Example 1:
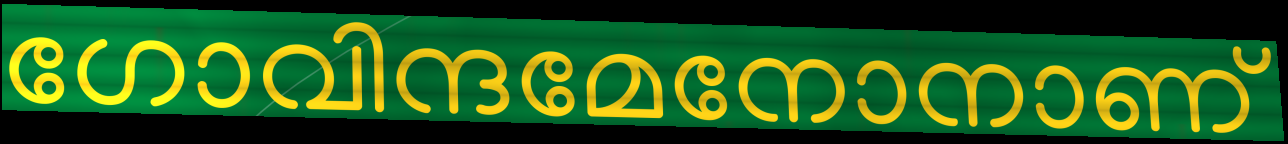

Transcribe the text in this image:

ഗോവിന്ദമേനോനാണ്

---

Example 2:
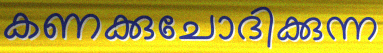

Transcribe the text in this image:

കണക്കുചോദിക്കുന്ന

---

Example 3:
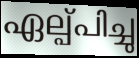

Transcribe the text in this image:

ഏല്പ്പിച്ചു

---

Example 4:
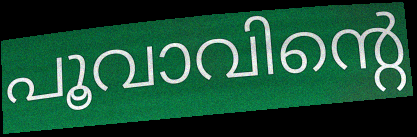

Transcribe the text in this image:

പൂവാവിന്റെ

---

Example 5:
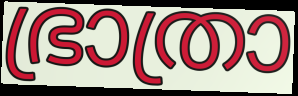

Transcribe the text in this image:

ഭ്രാത്രാ